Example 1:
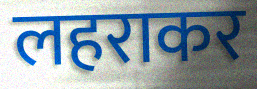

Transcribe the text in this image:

लहराकर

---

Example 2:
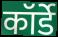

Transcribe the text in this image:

कॉर्डे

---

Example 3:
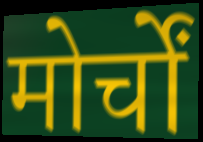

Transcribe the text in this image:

मोर्चों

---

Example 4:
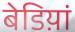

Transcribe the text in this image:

बेडिय़ां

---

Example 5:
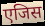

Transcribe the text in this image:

एजिस